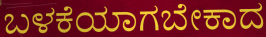
ಬಳಕೆಯಾಗಬೇಕಾದ